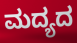
ಮದ್ಯದ